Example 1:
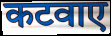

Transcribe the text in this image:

कटवाए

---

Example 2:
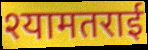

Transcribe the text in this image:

श्यामतराई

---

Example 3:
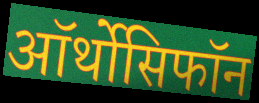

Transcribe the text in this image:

ऑर्थोसिफॉन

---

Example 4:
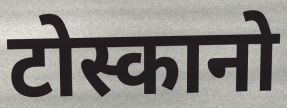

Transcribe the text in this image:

टोस्कानो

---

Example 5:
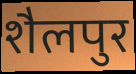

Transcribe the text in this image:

शैलपुर